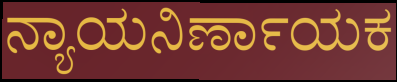
ನ್ಯಾಯನಿರ್ಣಾಯಕ